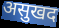
असुखद